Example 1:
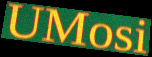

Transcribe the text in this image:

UMosi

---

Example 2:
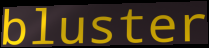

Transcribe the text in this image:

bluster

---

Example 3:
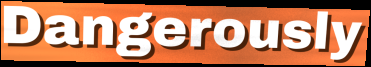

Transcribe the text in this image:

Dangerously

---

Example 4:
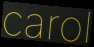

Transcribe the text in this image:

carol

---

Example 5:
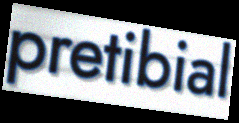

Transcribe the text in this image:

pretibial